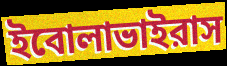
ইবোলাভাইরাস